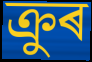
ক্ৰুৰ